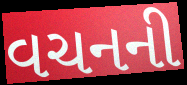
વચનની